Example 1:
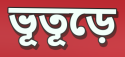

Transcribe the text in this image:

ভূতূড়ে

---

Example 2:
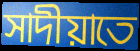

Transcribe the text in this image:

সাদীয়াতে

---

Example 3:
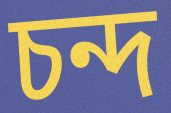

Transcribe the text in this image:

চন্দ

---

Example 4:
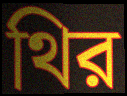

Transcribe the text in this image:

থির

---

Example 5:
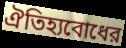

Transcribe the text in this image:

ঐতিহ্যবোধের